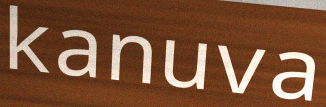
kanuva